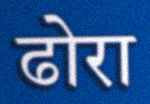
ढोरा